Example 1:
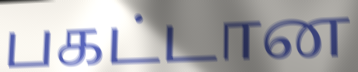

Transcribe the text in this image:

பகட்டான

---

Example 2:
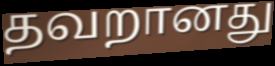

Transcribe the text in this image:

தவறானது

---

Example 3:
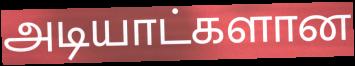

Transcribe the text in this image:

அடியாட்களான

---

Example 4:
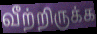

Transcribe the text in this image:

வீற்றிருக்க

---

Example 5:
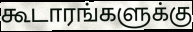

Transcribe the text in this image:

கூடாரங்களுக்கு